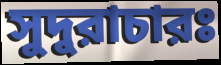
সুদুরাচারঃ